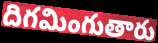
దిగమింగుతారు